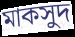
মাকসুদ